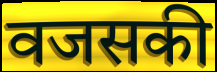
वजसकी